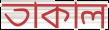
তাকাল